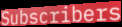
Subscribers